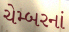
ચેમ્બરનાં